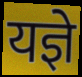
यज्ञे